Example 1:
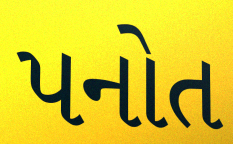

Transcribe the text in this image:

પનોત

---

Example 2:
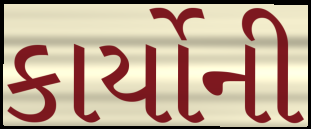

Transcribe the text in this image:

કાર્યોની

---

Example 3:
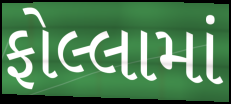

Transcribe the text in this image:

ફોલ્લામાં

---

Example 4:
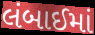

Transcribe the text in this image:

લંબાઈમાં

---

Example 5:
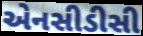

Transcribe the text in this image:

એનસીડીસી